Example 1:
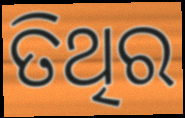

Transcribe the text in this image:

ତିଥିର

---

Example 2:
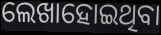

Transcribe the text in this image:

ଲେଖାହୋଇଥିବା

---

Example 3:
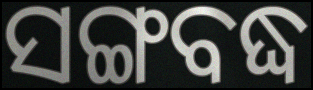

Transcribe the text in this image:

ସଙ୍ଗବଦ୍ଧ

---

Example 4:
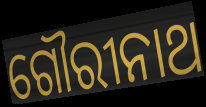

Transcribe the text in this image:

ଗୌରୀନାଥ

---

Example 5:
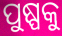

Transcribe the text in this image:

ପୁଷ୍ପକୁ